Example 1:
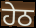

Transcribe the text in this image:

ਹੇਠ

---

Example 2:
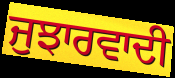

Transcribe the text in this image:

ਜੁਝਾਰਵਾਦੀ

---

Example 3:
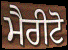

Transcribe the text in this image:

ਮੈਰੀਟੋ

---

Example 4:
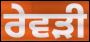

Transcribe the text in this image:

ਰੇਵੜੀ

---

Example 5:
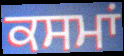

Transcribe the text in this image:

ਕਸਮਾਂ